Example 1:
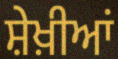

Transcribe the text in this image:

ਸ਼ੇਖ਼ੀਆਂ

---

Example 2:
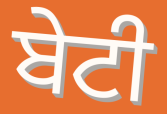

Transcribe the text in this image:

ਬੇਟੀ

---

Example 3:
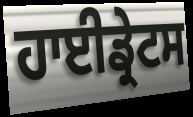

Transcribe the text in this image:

ਹਾਈਡ੍ਰੇਟਸ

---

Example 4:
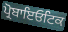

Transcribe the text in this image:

ਪ੍ਰੋਬਾਇਓਟਿਕ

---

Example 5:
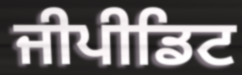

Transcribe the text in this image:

ਜੀਪੀਡਿਟ